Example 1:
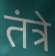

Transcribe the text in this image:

तंत्रे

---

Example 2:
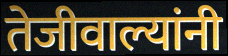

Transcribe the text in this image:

तेजीवाल्यांनी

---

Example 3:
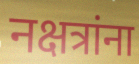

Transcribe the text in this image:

नक्षत्रांना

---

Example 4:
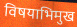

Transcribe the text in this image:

विषयाभिमुख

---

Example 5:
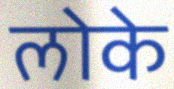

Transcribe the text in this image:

लोके